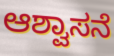
ಆಶ್ವಾಸನೆ